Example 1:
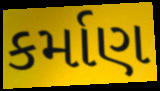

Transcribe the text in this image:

કર્માણ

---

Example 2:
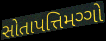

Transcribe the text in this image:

સોતાપત્તિમગ્ગો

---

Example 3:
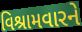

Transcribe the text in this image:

વિશ્રામવારને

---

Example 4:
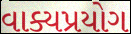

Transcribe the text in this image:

વાક્યપ્રયોગ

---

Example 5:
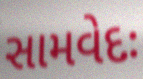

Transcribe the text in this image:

સામવેદઃ